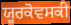
ਯੂਰਕੋਵਸਕੀ